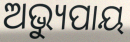
ଅଭ୍ୟୁପାୟ